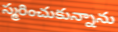
స్మరించుకున్నాను